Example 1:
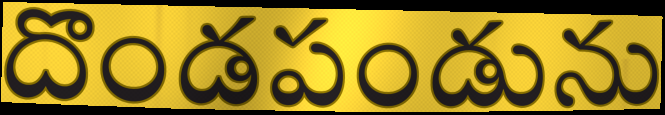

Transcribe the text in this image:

దొండపండును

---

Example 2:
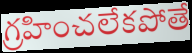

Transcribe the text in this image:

గ్రహించలేకపోతే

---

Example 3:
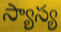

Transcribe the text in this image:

స్యాస్య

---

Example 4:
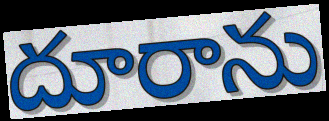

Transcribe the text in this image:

దూరాను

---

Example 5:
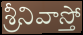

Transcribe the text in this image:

శ్రీనివాస్తో